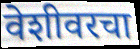
वेशीवरचा